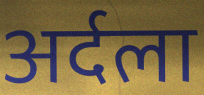
अर्दला